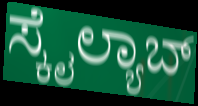
ಸ್ಕೈಲ್ಯಾಬ್